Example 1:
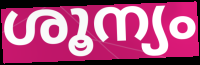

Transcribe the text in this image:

ശൂന്യം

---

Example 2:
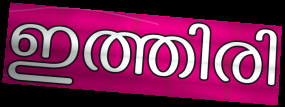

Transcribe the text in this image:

ഇത്തിരി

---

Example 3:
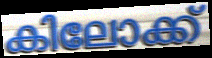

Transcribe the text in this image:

കിലോക്ക്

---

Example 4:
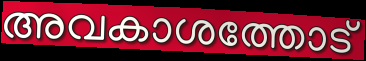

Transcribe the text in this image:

അവകാശത്തോട്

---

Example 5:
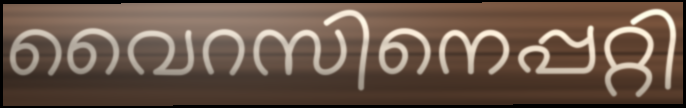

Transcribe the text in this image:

വൈറസിനെപ്പറ്റി